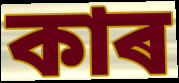
কাৰ